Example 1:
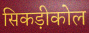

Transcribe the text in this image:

सिकड़ीकोल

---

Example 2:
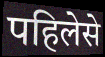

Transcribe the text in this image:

पहिलेसे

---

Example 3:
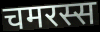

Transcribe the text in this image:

चमरस्स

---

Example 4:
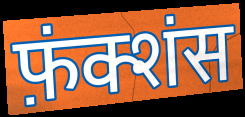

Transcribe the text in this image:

फ़ंक्शंस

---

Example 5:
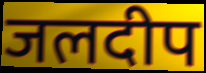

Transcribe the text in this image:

जलदीप